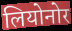
लियोनोर